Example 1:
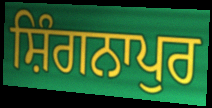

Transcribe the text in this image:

ਸ਼ਿੰਗਨਾਪੁਰ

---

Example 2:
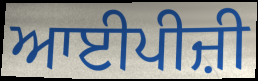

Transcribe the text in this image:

ਆਈਪੀਜ਼ੀ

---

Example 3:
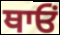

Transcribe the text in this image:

ਥਾਓਂ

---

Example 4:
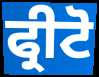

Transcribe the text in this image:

ਫ੍ਰੀਟੋ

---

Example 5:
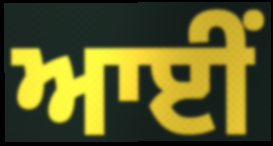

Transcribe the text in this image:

ਆਈਂ